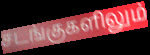
சடங்குகளிலும்